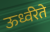
ऊर्ध्वरेते